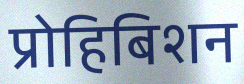
प्रोहिबिशन